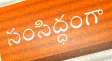
సంసిద్ధంగా